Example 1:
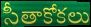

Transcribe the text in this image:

సీతాకోకలు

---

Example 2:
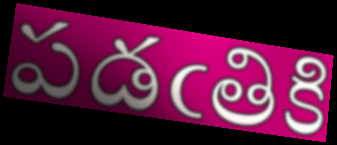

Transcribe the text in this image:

పడఁతికి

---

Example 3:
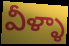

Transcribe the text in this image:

వీళ్ళా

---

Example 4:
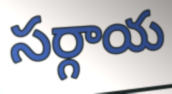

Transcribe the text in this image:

సర్గాయ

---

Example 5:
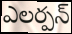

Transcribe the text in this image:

ఎలర్పన్